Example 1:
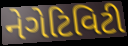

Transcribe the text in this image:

નેગેટિવિટી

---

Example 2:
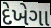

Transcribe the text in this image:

દેખેગા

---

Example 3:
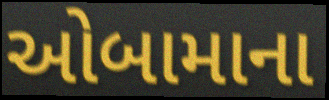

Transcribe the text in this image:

ઓબામાના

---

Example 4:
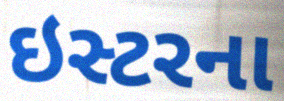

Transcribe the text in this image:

ઇસ્ટરના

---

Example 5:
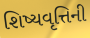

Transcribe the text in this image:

શિષ્યવૃત્તિની